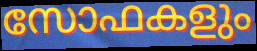
സോഫകളും